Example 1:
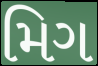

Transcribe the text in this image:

મિગ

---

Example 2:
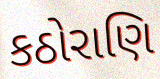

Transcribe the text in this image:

કઠોરાણિ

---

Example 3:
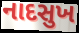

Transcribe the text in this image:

નાદસુખ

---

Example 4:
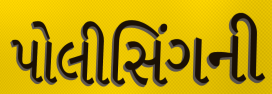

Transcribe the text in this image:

પોલીસિંગની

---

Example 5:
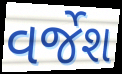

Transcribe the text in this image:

વર્જેશ